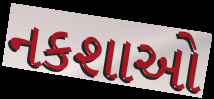
નકશાઓ